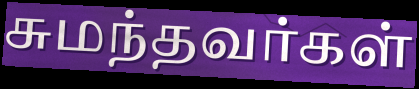
சுமந்தவர்கள்